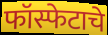
फॉस्फेटाचे